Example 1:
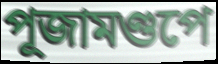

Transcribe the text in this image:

পূজামণ্ডপে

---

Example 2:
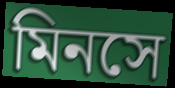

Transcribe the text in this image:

মিনসে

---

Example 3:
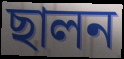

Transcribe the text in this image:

ছালন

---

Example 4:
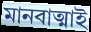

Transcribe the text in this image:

মানবাত্মাই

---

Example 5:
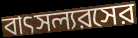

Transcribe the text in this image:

বাৎসল্যরসের